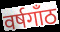
वर्षगाँठ